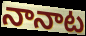
నానాట